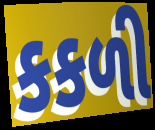
કકળી